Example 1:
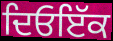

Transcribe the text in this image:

ਦਿਓਇੱਕ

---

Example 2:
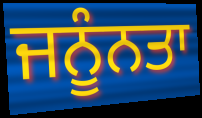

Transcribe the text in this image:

ਜਨੂੰਨਤਾ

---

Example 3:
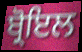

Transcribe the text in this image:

ਬ੍ਰੋਇਲ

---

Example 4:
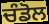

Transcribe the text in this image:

ਚੰਡੋਲ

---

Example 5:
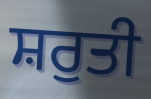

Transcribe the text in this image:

ਸ਼ਰੁਤੀ